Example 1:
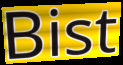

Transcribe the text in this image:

Bist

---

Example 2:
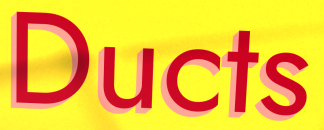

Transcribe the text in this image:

Ducts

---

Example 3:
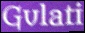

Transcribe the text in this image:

Gulati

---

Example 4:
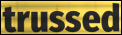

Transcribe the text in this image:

trussed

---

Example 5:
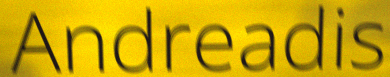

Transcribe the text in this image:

Andreadis